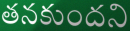
తనకుందని